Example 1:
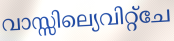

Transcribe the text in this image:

വാസ്സില്യെവിറ്റ്ചേ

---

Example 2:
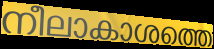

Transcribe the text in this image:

നീലാകാശത്തെ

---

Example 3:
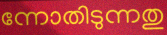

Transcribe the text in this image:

ന്നോതിടുന്നതു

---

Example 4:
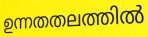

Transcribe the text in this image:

ഉന്നതതലത്തിൽ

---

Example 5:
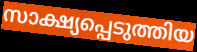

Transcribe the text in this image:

സാക്ഷ്യപ്പെടുത്തിയ